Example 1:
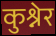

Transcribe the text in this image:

कुश्नेर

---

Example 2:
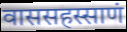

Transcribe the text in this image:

वाससहस्साणं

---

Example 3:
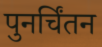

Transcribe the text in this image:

पुनर्चिंतन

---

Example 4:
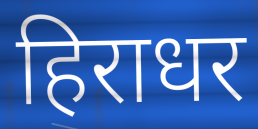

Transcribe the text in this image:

हिराधर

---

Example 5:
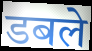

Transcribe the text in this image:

डबले